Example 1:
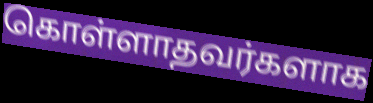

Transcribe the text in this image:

கொள்ளாதவர்களாக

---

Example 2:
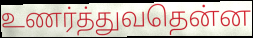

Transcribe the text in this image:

உணர்த்துவதென்ன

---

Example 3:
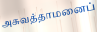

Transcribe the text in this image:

அசுவத்தாமனைப்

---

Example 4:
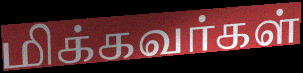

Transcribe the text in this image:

மிக்கவர்கள்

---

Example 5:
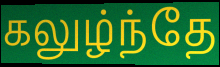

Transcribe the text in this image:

கலுழ்ந்தே